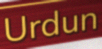
Urdun